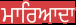
ਮਾਰਿਆਦਾ